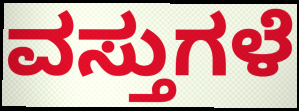
ವಸ್ತುಗಳೆ